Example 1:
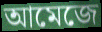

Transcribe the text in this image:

আমেজে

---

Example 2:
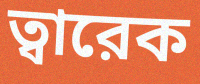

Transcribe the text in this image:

ত্বারেক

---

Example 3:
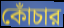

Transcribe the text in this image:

কোঁচার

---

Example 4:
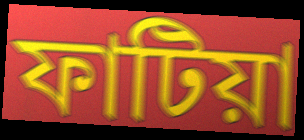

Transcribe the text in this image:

ফাটিয়া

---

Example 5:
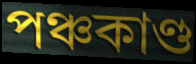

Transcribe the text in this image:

পঞ্চকাণ্ড